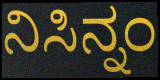
ನಿಸಿನ್ನಂ